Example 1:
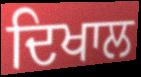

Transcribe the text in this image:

ਦਿਖਾਲ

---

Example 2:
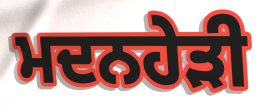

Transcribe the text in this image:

ਮਦਨਹੇੜੀ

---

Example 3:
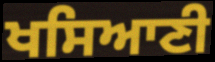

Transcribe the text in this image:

ਖਸਿਆਣੀ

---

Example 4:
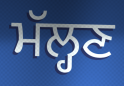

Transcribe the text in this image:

ਮੱਲ੍ਹਣ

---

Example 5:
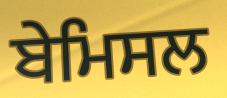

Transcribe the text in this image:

ਬੇਮਿਸਲ